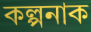
কল্পনাক